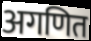
अगणित